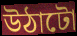
উঠাটো